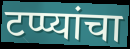
टप्प्यांचा